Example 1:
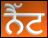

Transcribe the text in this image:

ਨੈੱਟ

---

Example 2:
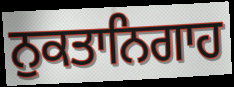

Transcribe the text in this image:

ਨੁਕਤਾਨਿਗਾਹ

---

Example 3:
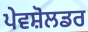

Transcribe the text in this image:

ਪੇਵਸ਼ੋਲਡਰ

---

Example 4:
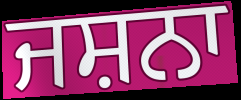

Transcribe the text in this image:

ਜਸ਼ਨਾ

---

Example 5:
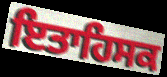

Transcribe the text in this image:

ਇਤਾਹਿਸਕ